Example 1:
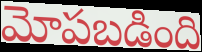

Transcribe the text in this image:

మోపబడింది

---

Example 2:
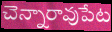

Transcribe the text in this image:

చెన్నారావుపేట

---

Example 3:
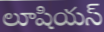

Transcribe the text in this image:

లూషియస్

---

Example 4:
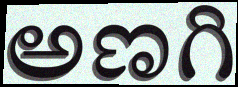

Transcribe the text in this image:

అణగి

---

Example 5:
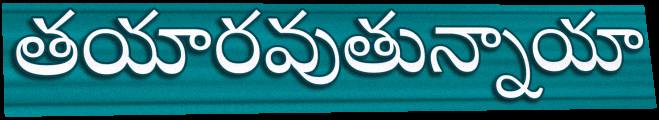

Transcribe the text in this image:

తయారవుతున్నాయా